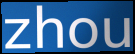
zhou